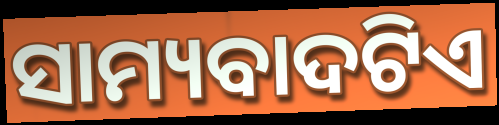
ସାମ୍ୟବାଦଟିଏ